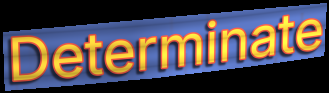
Determinate